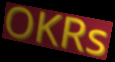
OKRs